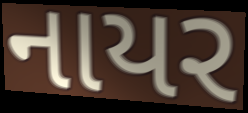
નાયર